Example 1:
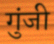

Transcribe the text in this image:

गुंजी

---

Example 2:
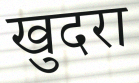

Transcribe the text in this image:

खुदरा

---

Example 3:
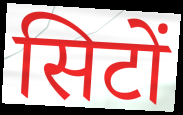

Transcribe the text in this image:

सिटों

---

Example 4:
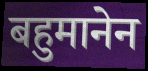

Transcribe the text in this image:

बहुमानेन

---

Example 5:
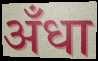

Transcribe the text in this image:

अँधा